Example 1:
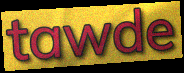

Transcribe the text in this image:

tawde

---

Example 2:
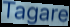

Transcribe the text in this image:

Tagare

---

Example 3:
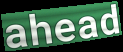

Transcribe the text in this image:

ahead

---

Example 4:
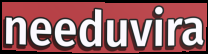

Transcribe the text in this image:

needuvira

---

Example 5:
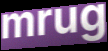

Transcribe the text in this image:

mrug